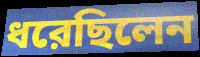
ধরেছিলেন